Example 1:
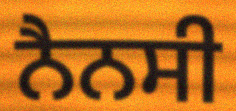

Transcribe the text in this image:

ਨੈਨਸੀ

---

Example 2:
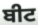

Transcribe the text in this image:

ਬੀਟ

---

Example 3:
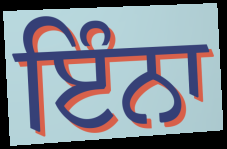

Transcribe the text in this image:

ਇੰਨਾ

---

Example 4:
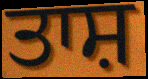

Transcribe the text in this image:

ਤਾਸ਼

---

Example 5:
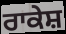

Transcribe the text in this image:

ਰਾਕੇਸ਼